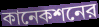
কানেকশনের